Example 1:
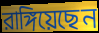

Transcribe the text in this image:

রাঙ্গিয়েছেন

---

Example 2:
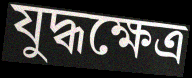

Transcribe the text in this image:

যুদ্ধক্ষেত্র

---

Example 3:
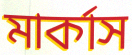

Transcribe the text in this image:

মার্কাস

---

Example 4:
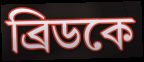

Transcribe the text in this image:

ব্রিডকে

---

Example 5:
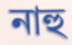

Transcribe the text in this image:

নাহু